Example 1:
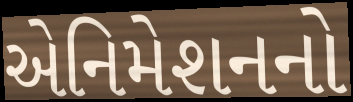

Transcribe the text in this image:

એનિમેશનનો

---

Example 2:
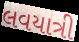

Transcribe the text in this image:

લવયાત્રી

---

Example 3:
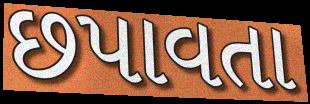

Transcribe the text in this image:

છપાવતા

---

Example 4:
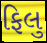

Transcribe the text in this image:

ફિલુ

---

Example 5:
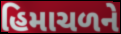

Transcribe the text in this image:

હિમાચળને